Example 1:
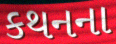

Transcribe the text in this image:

કથનના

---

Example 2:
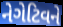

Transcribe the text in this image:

નેગેટિવને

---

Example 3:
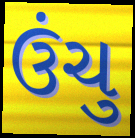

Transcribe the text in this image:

ઉંચુ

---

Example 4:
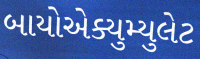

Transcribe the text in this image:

બાયોએક્યુમ્યુલેટ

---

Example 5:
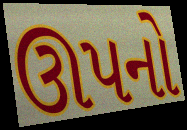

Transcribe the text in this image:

ઊપનો